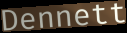
Dennett